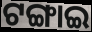
ଟଙ୍ଗାଇ